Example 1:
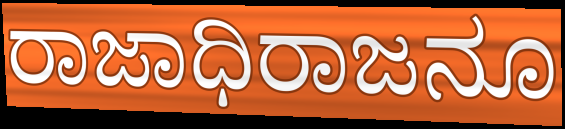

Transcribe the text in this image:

ರಾಜಾಧಿರಾಜನೂ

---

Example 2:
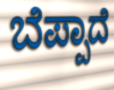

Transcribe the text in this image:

ಬೆಪ್ಪಾದೆ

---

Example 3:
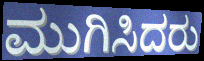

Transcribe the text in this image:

ಮುಗಿಸಿದರು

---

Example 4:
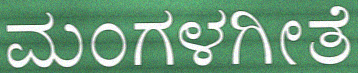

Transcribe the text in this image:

ಮಂಗಳಗೀತೆ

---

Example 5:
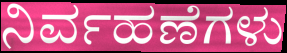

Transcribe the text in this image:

ನಿರ್ವಹಣೆಗಳು